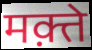
मक़्ते